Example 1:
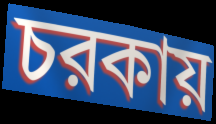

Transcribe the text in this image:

চরকায়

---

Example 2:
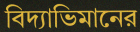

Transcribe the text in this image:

বিদ্যাভিমানের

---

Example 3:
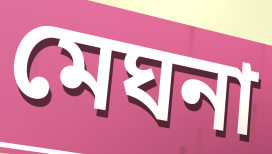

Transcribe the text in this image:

মেঘনা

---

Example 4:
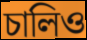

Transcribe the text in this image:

চালিও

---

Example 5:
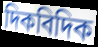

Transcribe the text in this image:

দিকবিদিক